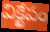
విక్ఖేపం